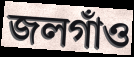
জলগাঁও